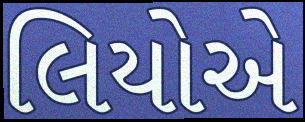
લિયોએ